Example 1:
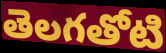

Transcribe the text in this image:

తెలగతోటి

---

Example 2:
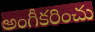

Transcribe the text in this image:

అంగీకరించు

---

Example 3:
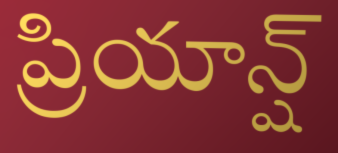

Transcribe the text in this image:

ప్రియాన్ష్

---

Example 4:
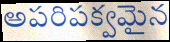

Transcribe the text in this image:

అపరిపక్వమైన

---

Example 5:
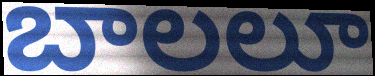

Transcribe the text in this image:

బాలలూ